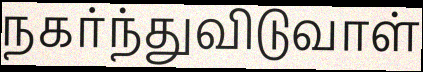
நகர்ந்துவிடுவாள்